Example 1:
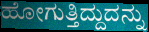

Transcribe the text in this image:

ಹೋಗುತ್ತಿದ್ದುದನ್ನು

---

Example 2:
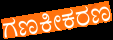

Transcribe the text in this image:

ಗಣಕೀಕರಣ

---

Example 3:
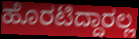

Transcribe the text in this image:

ಹೊರಟಿದ್ದಾರಲ್ಲ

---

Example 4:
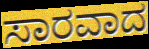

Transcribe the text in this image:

ಸಾರವಾದ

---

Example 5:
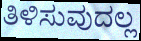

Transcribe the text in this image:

ತಿಳಿಸುವುದಲ್ಲ